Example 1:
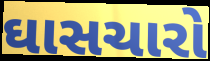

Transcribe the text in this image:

ઘાસચારો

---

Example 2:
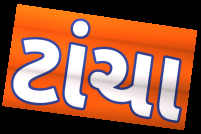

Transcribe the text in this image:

ટાંચા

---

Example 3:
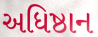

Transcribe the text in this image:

અધિષ્ઠાન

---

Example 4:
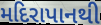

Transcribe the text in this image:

મદિરાપાનથી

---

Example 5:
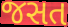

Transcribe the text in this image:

જસત